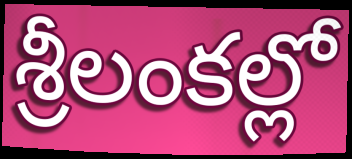
శ్రీలంకల్లో